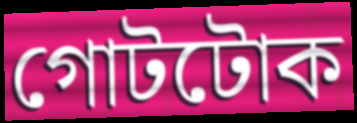
গোটটোক